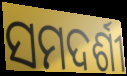
ସମଦର୍ଶୀ